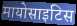
मायोसाइटिस